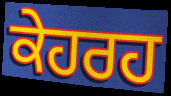
ਕੇਹਰਹ